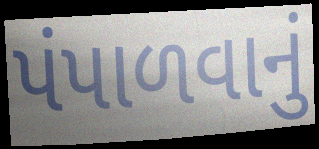
પંપાળવાનું